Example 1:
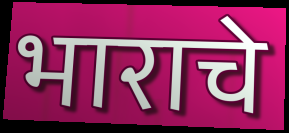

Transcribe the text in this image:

भाराचे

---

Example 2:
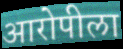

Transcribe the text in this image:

आरोपीला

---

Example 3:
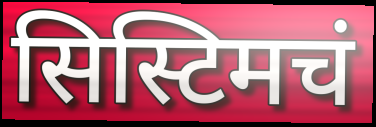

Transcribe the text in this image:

सिस्टिमचं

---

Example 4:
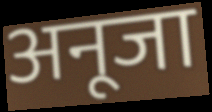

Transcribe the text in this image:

अनूजा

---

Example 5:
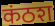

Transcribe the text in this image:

कंठश